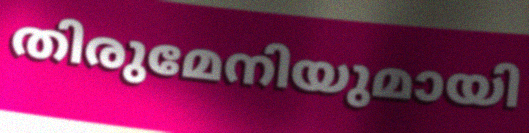
തിരുമേനിയുമായി